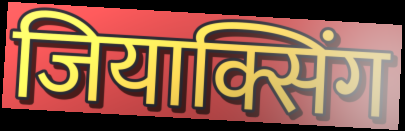
जियाक्सिंग